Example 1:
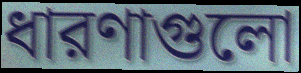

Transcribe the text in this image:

ধারণাগুলো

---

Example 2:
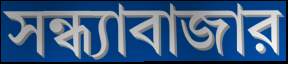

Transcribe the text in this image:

সন্ধ্যাবাজার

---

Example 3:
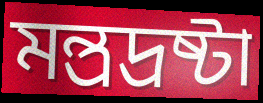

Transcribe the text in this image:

মন্ত্রদ্রষ্টা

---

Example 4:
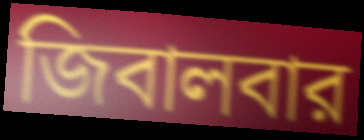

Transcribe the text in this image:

জিবালবার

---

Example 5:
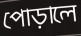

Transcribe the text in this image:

পোড়ালে